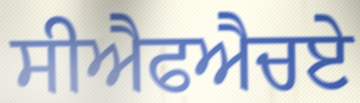
ਸੀਐਫਐਚਏ